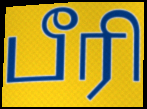
பீரி